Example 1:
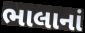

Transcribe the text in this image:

ભાલાનાં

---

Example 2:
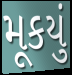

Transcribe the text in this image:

મૂકયું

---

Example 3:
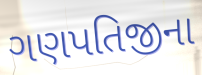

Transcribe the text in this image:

ગણપતિજીના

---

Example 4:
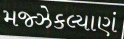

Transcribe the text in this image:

મજ્ઝેકલ્યાણં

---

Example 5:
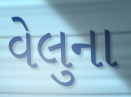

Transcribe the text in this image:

વેલુના